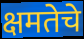
क्षमतेचे